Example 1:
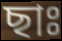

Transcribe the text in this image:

ছাঃ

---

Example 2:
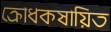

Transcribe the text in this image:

ক্রোধকষায়িত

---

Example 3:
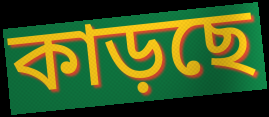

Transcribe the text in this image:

কাড়ছে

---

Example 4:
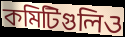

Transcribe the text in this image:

কমিটিগুলিও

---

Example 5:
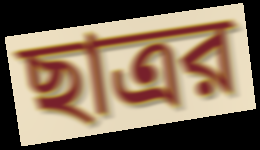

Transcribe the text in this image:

ছাত্রর